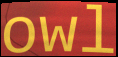
owl